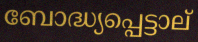
ബോദ്ധ്യപ്പെട്ടാല്